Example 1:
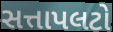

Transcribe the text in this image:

સત્તાપલટો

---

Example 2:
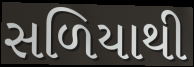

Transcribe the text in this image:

સળિયાથી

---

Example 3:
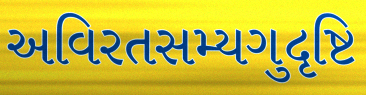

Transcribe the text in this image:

અવિરતસમ્યગુદૃષ્ટિ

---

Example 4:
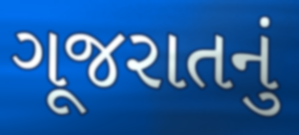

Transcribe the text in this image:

ગૂજરાતનું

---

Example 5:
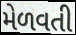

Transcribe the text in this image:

મેળવતી